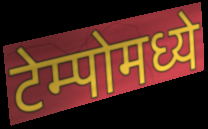
टेम्पोमध्ये